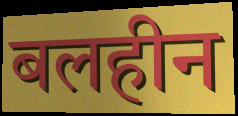
बलहीन